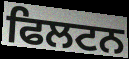
ਫਿਲਟਨ